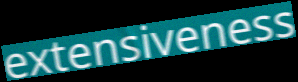
extensiveness